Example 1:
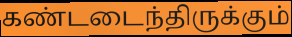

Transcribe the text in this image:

கண்டடைந்திருக்கும்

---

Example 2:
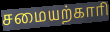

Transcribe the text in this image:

சமையற்காரி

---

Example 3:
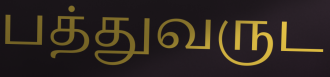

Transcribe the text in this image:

பத்துவருட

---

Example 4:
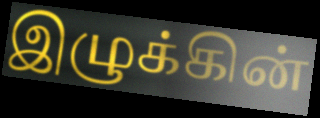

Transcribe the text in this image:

இழுக்கின்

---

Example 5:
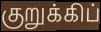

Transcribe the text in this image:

குறுக்கிப்